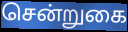
சென்றுகை